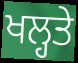
ਖਲ੍ਹਤੇ